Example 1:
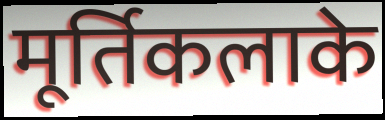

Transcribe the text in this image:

मूर्तिकलाके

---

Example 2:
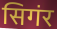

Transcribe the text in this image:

सिगंर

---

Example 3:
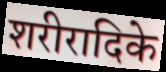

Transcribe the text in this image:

शरीरादिके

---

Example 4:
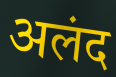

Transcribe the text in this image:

अलंद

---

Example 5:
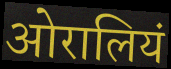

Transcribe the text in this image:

ओरालियं